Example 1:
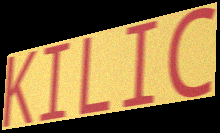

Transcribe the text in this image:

KILIC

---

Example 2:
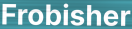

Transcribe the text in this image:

Frobisher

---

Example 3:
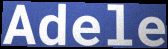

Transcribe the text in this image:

Adele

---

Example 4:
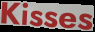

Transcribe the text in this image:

Kisses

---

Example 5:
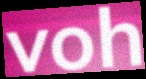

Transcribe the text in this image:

voh